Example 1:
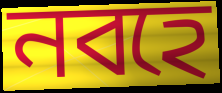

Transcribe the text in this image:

নবহে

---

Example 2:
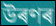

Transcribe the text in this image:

উৰণৰ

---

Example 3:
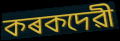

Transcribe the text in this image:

কৰকদেৱী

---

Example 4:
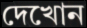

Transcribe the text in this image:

দেখোন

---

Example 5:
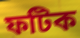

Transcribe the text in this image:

ফটিক